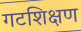
गटशिक्षण